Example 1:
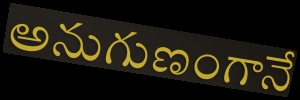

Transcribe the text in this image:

అనుగుణంగానే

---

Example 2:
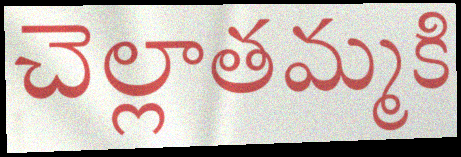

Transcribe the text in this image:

చెల్లాతమ్మకి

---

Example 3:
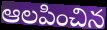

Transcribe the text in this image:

ఆలపించిన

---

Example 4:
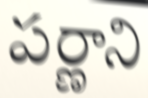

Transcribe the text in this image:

పర్ణాని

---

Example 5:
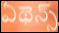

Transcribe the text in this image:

ఏథెన్స్